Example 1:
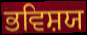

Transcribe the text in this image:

ਭਵਿਸ਼ਯ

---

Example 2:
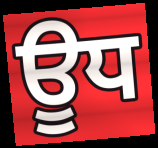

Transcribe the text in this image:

ਊਧ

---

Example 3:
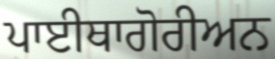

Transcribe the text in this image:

ਪਾਈਥਾਗੋਰੀਅਨ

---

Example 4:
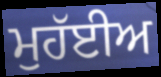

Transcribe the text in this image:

ਮੁਹੱਈਅ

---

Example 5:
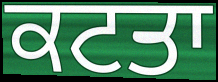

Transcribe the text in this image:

ਕਟਤਾ